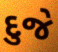
દુજે